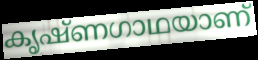
കൃഷ്ണഗാഥയാണ്